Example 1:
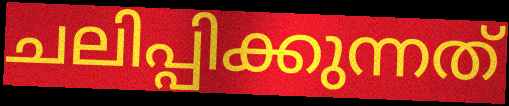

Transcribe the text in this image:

ചലിപ്പിക്കുന്നത്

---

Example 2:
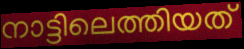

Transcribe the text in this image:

നാട്ടിലെത്തിയത്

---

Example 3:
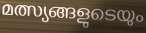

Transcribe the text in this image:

മത്സ്യങ്ങളുടെയും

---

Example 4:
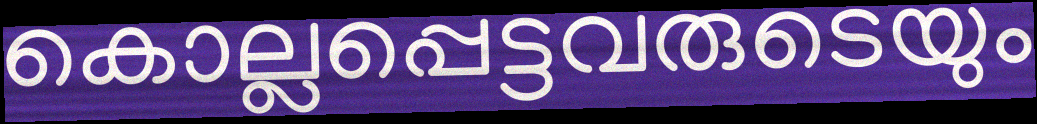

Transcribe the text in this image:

കൊല്ലപ്പെട്ടവരുടെയും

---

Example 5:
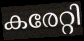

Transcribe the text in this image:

കരേറ്റി